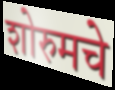
शोरुमचे